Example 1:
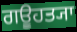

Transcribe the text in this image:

ਗਊਹਤ੍ਯਾ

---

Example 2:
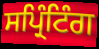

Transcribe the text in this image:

ਸਪ੍ਰਿੰਟਿੰਗ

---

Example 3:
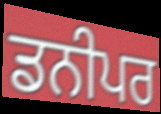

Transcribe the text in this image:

ਡਨੀਪਰ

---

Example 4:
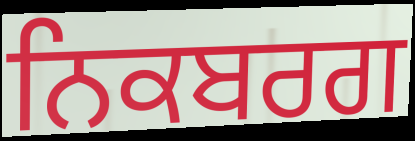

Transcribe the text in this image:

ਨਿਕਬਰਗ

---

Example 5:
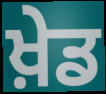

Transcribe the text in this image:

ਖ਼ੇਡ